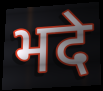
भदे